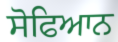
ਸੋਫਿਆਨ